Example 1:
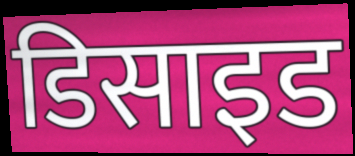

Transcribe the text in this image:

डिसाइड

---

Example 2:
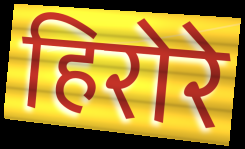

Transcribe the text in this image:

हिरोरे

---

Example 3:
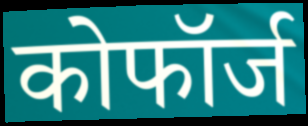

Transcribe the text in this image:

कोफॉर्ज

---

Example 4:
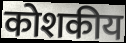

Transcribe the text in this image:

कोशकीय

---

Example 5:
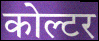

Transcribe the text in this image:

कोल्टर